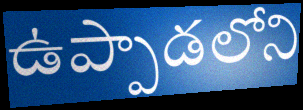
ఉప్పాడలోని